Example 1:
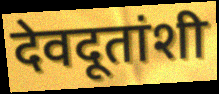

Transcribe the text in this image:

देवदूतांशी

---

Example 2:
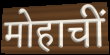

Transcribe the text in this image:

मोहाचीं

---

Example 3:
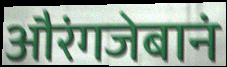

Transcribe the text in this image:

औरंगजेबानं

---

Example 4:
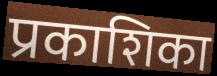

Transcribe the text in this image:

प्रकाशिका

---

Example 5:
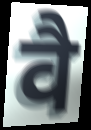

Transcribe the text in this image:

वै